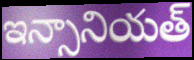
ఇన్సానియత్